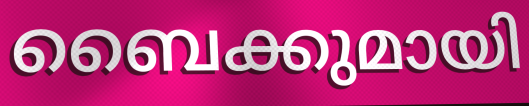
ബൈക്കുമായി